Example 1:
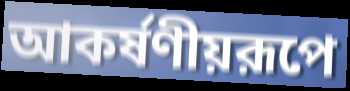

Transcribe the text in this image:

আকর্ষণীয়রূপে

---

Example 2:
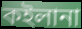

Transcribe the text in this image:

কইলানা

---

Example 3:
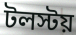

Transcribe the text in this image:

টলস্টয়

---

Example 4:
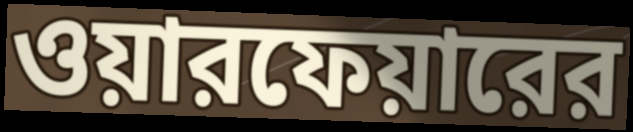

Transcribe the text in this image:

ওয়ারফেয়ারের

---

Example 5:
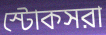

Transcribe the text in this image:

স্টোকসরা